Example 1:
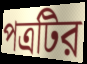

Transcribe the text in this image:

পত্রটির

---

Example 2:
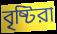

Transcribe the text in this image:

বৃষ্টিরা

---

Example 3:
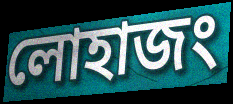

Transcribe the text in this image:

লোহাজং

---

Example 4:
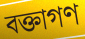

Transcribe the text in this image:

বক্তাগণ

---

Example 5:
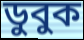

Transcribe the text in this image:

ডুবুক